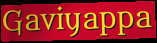
Gaviyappa